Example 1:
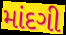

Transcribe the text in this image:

માંદગી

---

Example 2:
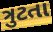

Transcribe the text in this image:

ત્રુટતા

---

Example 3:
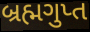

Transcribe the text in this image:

બ્રહ્મગુપ્ત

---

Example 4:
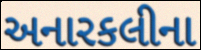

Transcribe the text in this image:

અનારકલીના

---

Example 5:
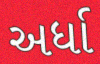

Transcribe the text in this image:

અર્ધા